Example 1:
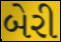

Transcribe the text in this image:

બેરી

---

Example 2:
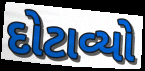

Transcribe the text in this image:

દોટાવ્યો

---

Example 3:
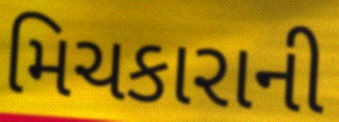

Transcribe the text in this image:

મિચકારાની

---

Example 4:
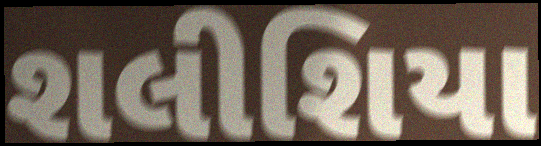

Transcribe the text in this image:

શલીશિયા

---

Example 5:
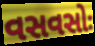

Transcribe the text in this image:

વસવસોઃ